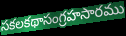
సకలకథాసంగ్రహసారము